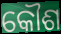
କୌଶ